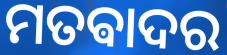
ମତଵାଦର